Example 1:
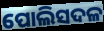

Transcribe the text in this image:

ପୋଲିସଦଳ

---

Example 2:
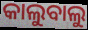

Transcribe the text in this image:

କାଲୁବାଲୁ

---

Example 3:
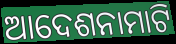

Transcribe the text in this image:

ଆଦେଶନାମାଟି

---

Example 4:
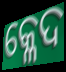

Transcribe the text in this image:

କ୍ଳେଦ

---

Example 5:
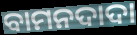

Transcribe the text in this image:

ବାମନଦାଦା